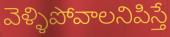
వెళ్ళిపోవాలనిపిస్తే